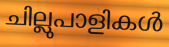
ചില്ലുപാളികൾ